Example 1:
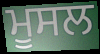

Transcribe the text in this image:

ਮੂਸਲ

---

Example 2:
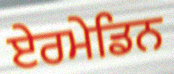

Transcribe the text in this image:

ਏਰਮੇਡਿਨ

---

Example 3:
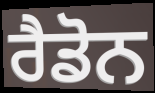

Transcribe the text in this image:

ਰੈਡੋਨ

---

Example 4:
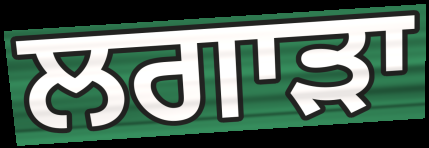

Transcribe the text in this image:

ਲਗਾੜਾ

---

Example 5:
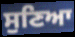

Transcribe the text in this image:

ਸੁਣਿਆ